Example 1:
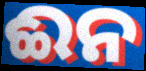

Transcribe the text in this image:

ଈନ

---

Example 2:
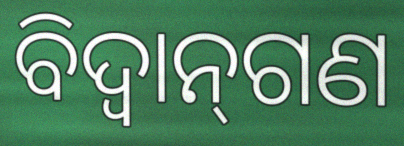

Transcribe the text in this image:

ବିଦ୍ୱାନ୍‌ଗଣ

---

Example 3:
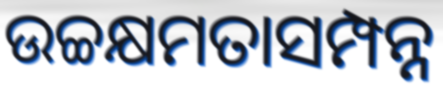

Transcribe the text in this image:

ଉଚ୍ଚକ୍ଷମତାସମ୍ପନ୍ନ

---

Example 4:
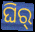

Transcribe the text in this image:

ଘିର୍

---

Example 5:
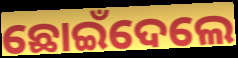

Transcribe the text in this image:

ଛୋଇଁଦେଲେ